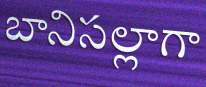
బానిసల్లాగా